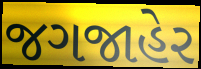
જગજાહેર